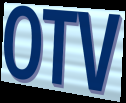
OTV